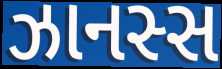
ઝાનસ્સ